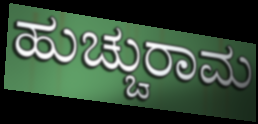
ಹುಚ್ಚುರಾಮ